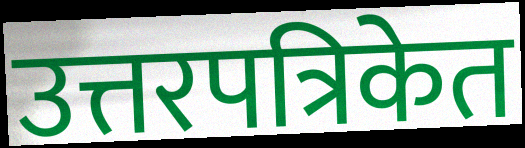
उत्तरपत्रिकेत